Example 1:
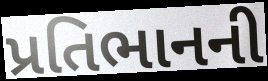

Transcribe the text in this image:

પ્રતિભાનની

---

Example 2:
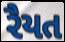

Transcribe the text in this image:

રૈયત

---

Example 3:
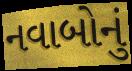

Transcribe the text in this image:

નવાબોનું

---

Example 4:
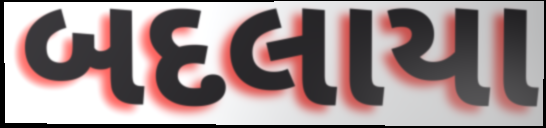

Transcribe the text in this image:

બદલાયા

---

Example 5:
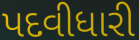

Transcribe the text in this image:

પદવીધારી